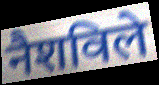
नैशविले